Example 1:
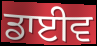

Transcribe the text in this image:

ਡਾਈਵ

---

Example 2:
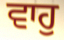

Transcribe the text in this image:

ਵਾਹੁ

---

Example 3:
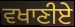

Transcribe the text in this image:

ਵਖਾਣੀਏ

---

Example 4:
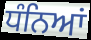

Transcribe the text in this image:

ਧੰਨਿਆਂ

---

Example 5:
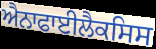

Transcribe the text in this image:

ਐਨਾਫਾਈਲੈਕਸਿਸ